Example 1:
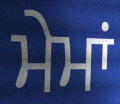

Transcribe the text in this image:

ਮੇਮਾਂ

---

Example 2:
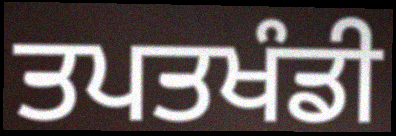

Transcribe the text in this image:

ਤਪਤਖੰਡੀ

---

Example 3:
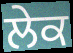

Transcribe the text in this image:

ਲੇਕ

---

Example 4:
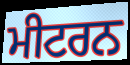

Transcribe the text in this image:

ਮੀਟਰਨ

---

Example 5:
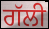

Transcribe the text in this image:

ਗੱਲੀ